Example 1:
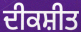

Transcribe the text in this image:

ਦੀਕਸ਼ੀਤ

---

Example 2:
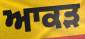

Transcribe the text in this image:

ਆਕੜ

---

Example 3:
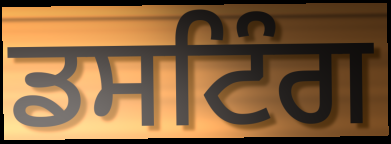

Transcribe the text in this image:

ਡਸਟਿੰਗ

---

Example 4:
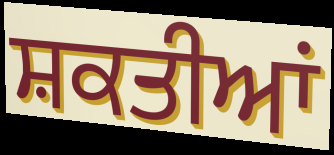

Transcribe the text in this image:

ਸ਼ਕਤੀਆਂ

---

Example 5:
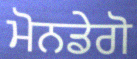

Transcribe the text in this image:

ਮੋਨਡੇਗੋ